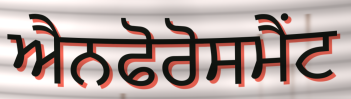
ਐਨਫੋਰੋਸਮੈਂਟ